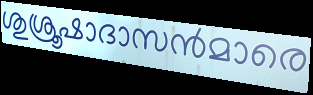
ശുശ്രൂഷാദാസൻമാരെ